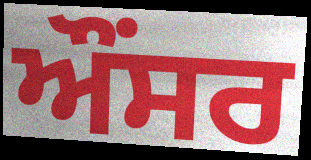
ਔਂਸਰ